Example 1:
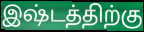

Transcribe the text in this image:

இஷ்டத்திற்கு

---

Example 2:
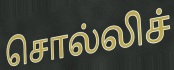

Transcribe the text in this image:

சொல்லிச்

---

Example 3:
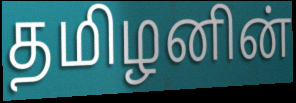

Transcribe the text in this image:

தமிழனின்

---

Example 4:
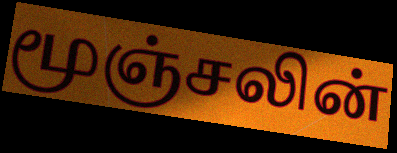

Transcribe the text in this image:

மூஞ்சலின்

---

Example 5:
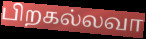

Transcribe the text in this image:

பிறகல்லவா